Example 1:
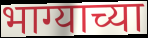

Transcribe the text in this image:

भाग्याच्या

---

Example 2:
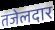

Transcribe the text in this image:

तजेलदार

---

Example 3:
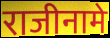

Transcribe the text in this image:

राजीनामे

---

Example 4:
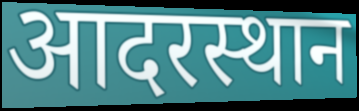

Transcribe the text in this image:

आदरस्थान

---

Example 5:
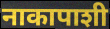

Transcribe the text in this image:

नाकापाशी